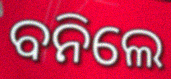
ବନିଲେ